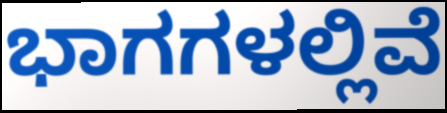
ಭಾಗಗಳಲ್ಲಿವೆ